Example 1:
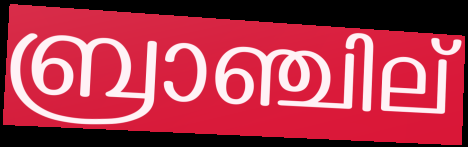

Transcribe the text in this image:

ബ്രാഞ്ചില്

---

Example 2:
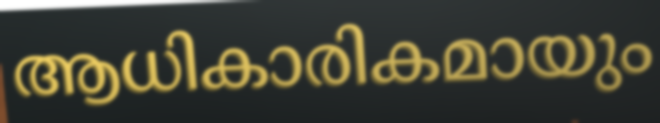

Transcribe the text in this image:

ആധികാരികമായും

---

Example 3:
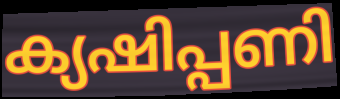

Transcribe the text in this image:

ക്യഷിപ്പണി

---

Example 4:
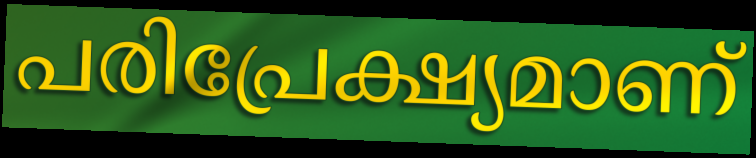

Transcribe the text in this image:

പരിപ്രേക്ഷ്യമാണ്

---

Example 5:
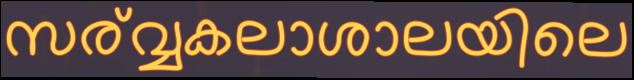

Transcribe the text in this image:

സര്വ്വകലാശാലയിലെ